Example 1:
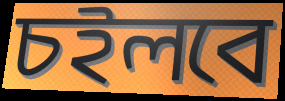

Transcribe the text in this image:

চইলবে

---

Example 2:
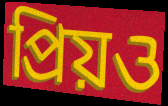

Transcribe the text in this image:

প্রিয়ও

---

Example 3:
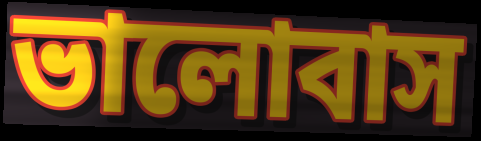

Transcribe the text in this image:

ভালোবাস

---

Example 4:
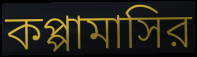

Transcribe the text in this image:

কপ্পামাসির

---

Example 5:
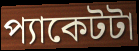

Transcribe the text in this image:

প্যাকেটটা